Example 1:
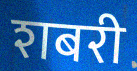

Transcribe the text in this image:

शबरी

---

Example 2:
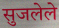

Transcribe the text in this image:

सुजलेले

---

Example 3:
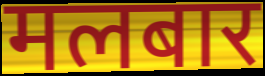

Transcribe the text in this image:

मलबार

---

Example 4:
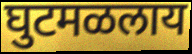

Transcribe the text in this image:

घुटमळलाय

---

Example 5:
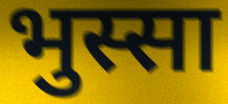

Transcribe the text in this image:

भुस्सा